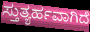
ಸ್ತುತ್ಯರ್ಹವಾಗಿದೆ